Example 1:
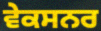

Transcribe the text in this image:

ਵੇਕਸਨਰ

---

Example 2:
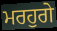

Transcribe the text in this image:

ਮਰਹੁਗੇ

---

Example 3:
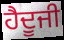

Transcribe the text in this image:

ਹੈਦੂਜੀ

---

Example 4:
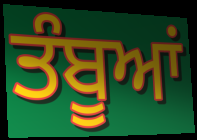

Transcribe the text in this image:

ਤੰਬੂਆਂ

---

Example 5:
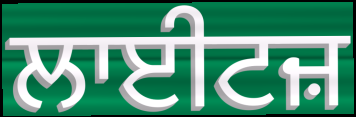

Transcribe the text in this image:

ਲਾਈਟਜ਼